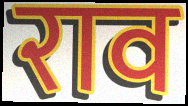
राव